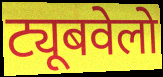
ट्यूबवेलो